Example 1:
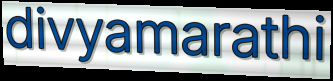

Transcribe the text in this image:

divyamarathi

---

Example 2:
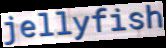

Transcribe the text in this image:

jellyfish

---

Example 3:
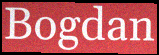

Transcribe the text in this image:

Bogdan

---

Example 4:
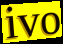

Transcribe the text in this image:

ivo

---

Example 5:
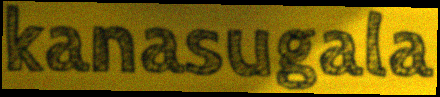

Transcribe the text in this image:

kanasugala